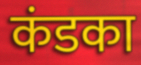
कंडका